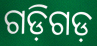
ଗଡ଼ିଗଡ଼